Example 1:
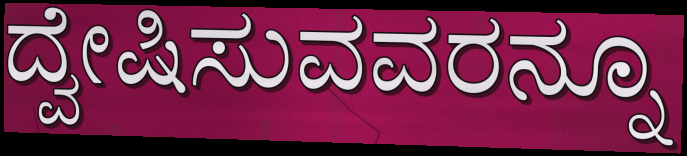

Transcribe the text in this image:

ದ್ವೇಷಿಸುವವರನ್ನೂ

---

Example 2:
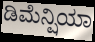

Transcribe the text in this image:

ಡಿಮೆನ್ಷಿಯಾ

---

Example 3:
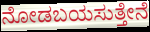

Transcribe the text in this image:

ನೋಡಬಯಸುತ್ತೇನೆ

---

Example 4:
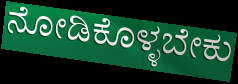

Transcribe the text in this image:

ನೋಡಿಕೊಳ್ಳಬೇಕು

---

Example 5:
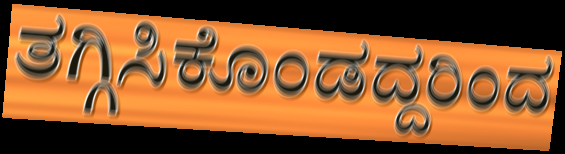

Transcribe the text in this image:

ತಗ್ಗಿಸಿಕೊಂಡದ್ದರಿಂದ